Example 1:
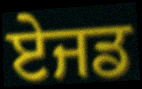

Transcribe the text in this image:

ਏਜਡ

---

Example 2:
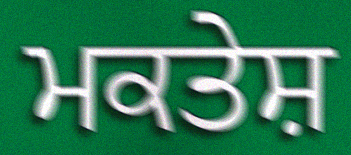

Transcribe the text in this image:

ਮਕਤੇਸ਼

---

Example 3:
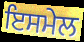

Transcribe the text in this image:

ਇਸਮੇਲ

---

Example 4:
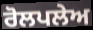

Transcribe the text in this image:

ਰੋਲਪਲੇਅ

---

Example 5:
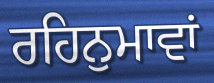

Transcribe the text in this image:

ਰਹਿਨੁਮਾਵਾਂ